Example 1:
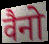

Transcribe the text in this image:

वैनो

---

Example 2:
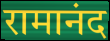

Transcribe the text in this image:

रामानंद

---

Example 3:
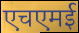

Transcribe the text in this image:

एचएमई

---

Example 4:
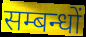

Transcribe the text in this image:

सम्बन्धों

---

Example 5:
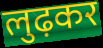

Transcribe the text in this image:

लुढ़कर